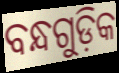
ବନ୍ଧଗୁଡ଼ିକ